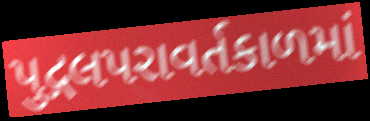
પુદ્ગલપરાવર્તકાળમાં